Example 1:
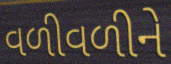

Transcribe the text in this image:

વળીવળીને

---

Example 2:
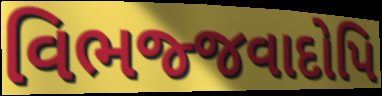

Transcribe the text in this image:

વિભજ્જવાદોપિ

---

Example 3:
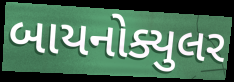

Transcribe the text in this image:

બાયનોક્યુલર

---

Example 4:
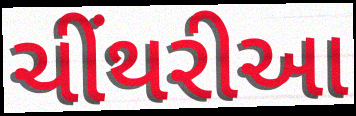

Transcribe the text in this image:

ચીંથરીઆ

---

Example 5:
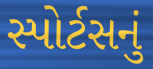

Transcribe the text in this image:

સ્પોર્ટસનું